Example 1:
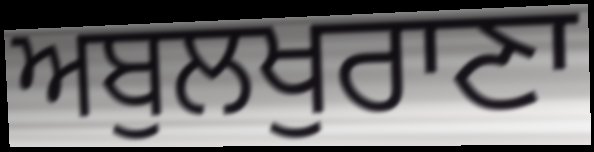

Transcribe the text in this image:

ਅਬੁਲਖੁਰਾਣਾ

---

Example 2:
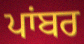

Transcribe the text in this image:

ਪਾਂਬਰ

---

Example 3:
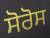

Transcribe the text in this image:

ਸੋਰੋਸ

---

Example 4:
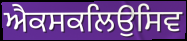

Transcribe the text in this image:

ਐਕਸਕਲਿਉਸਿਵ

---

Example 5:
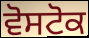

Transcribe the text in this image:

ਵੋਸਟੋਕ